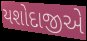
યશોદાજીએ